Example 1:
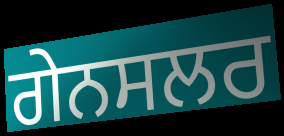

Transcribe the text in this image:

ਗੇਨਸਲਰ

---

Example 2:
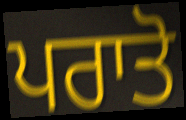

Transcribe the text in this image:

ਪਰਾਤੋ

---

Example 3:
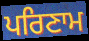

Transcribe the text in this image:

ਪਰਿਣਾਮ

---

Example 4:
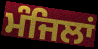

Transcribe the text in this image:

ਮੰਜਿਲਾਂ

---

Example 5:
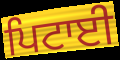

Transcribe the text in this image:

ਪਿਟਾਈ